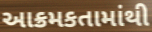
આક્રમકતામાંથી